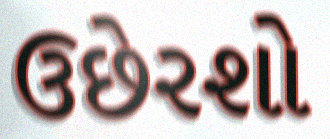
ઉછેરશો